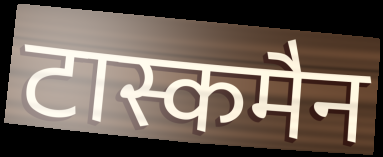
टास्कमैन